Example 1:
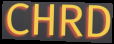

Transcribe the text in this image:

CHRD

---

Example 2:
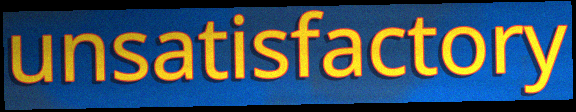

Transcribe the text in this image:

unsatisfactory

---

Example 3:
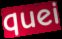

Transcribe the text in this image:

quei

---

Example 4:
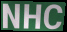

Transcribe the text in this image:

NHC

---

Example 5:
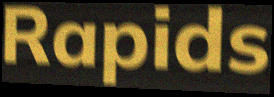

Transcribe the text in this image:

Rapids